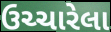
ઉચ્ચારેલા